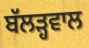
ਬੱਲੜ੍ਹਵਾਲ